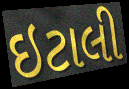
ઇટાલી